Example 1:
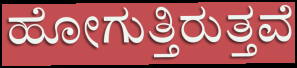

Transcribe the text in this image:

ಹೋಗುತ್ತಿರುತ್ತವೆ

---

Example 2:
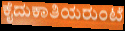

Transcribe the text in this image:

ಕೈದುಕಾತಿಯರುಂಟೆ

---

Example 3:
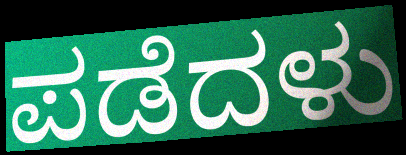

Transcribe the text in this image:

ಪಡೆದಳು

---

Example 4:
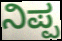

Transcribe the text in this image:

ನಿಪ್ಪ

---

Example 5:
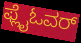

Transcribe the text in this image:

ಫ್ಲೈಓವರ್